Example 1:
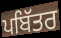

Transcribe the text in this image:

ਪਬਿੱਤਰ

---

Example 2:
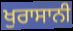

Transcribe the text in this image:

ਖੁਰਾਸਾਨੀ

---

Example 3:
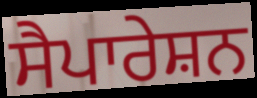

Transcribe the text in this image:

ਸੈਪਾਰੇਸ਼ਨ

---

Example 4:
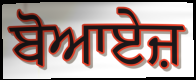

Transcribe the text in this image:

ਬੋਆਏਜ਼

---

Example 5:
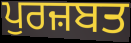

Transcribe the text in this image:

ਪੁਰਜ਼ਬਤ